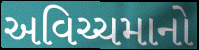
અવિચ્ચમાનો